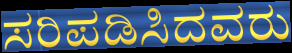
ಸರಿಪಡಿಸಿದವರು